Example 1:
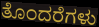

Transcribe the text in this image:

ತೊಂದರೆಗಳು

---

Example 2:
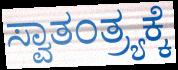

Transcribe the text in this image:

ಸ್ವಾತಂತ್ರ್ಯಕ್ಕೆ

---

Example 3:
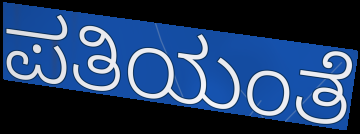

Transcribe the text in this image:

ಪತಿಯಂತೆ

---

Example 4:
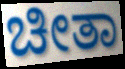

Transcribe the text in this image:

ಚೀತಾ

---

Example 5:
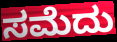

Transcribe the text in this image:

ಸಮೆದು